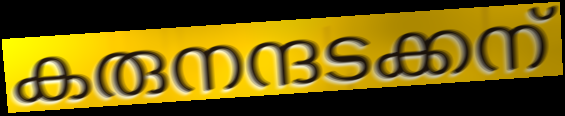
കരുനന്ദടക്കന്